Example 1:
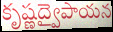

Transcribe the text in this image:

కృష్ణద్వైపాయన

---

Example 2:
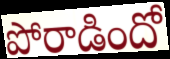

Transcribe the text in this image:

పోరాడిందో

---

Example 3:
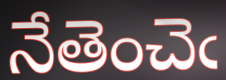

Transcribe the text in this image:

నేతెంచెఁ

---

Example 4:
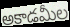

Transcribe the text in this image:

అకాడమీల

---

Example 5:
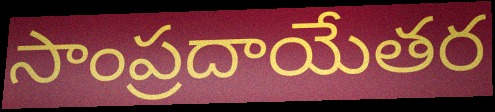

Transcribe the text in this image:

సాంప్రదాయేతర